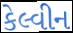
કેલ્વીન